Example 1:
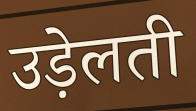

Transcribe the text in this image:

उड़ेलती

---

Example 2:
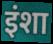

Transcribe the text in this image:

इंशा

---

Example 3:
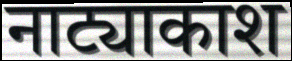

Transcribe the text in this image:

नाट्याकाश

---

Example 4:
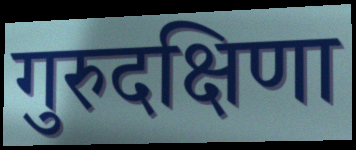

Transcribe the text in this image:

गुरुदक्षिणा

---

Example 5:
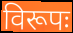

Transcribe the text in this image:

विरूपः